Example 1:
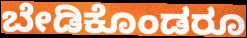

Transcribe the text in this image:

ಬೇಡಿಕೊಂಡರೂ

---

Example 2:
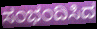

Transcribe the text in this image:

ಸಂಭಂದಿಸಿದ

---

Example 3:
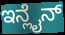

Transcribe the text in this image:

ಇನ್ಲೈನ್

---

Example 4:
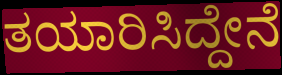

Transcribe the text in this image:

ತಯಾರಿಸಿದ್ದೇನೆ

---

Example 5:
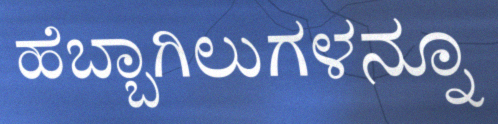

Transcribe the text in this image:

ಹೆಬ್ಬಾಗಿಲುಗಳನ್ನೂ